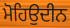
ਮੋਹਿਉਦੀਨ